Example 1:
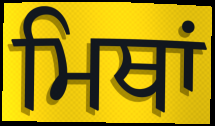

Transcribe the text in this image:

ਮਿਥਾਂ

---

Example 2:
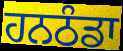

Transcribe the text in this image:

ਹਨਠੰਡਾ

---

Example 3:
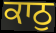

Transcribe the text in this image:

ਕਾਠੁ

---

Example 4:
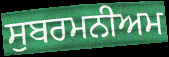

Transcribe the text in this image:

ਸੁਬਰਮਨੀਅਮ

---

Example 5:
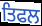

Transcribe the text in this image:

ਤਿਫਲ